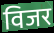
विजर